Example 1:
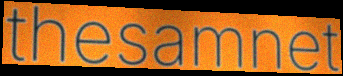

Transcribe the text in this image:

thesamnet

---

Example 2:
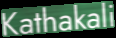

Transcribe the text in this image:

Kathakali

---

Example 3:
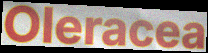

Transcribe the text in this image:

Oleracea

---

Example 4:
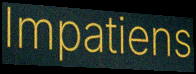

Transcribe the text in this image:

Impatiens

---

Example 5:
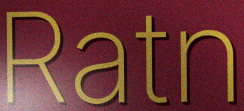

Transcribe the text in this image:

Ratn